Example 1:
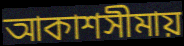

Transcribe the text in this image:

আকাশসীমায়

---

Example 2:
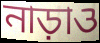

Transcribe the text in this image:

নাড়াও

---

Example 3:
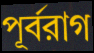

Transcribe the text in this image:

পূর্বরাগ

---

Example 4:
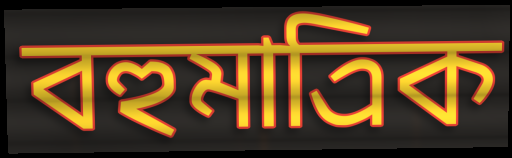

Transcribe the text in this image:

বহুমাত্রিক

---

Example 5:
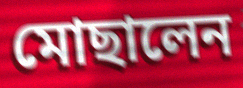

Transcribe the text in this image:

মোছালেন